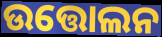
ଉତ୍ତୋଲନ